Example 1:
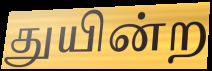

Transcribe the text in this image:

துயின்ற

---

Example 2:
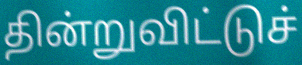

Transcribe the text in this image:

தின்றுவிட்டுச்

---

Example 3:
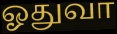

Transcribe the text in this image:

ஓதுவா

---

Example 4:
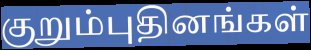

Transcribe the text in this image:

குறும்புதினங்கள்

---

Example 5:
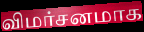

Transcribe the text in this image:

விமர்சனமாக